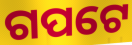
ଗପଟେ